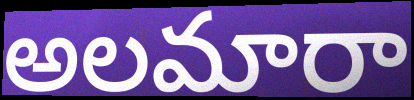
అలమారా